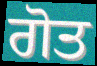
ਗੋਤ